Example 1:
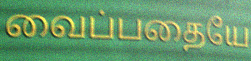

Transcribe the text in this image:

வைப்பதையே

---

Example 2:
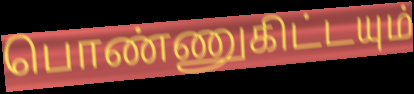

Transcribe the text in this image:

பொண்ணுகிட்டயும்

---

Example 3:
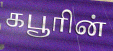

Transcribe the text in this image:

கபூரின்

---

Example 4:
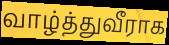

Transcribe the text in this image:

வாழ்த்துவீராக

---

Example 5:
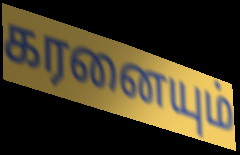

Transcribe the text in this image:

கரனையும்